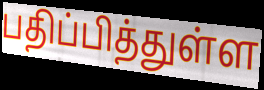
பதிப்பித்துள்ள